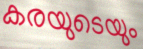
കരയുടെയും